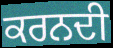
ਕਰਨਦੀ